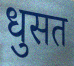
धुसत